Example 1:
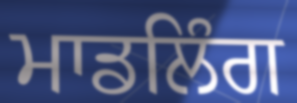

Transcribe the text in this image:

ਮਾਡਲਿੰਗ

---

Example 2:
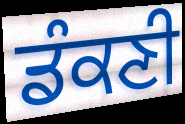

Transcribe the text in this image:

ਡੰਕਣੀ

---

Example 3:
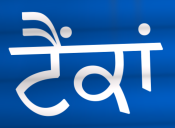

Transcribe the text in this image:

ਟੈਂਕਾਂ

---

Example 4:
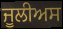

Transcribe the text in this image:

ਜੂਲੀਅਸ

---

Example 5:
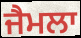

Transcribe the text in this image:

ਜੈਮਲਾ